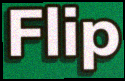
Flip